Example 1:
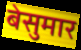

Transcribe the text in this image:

बेसुमार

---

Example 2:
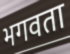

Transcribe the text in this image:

भगवता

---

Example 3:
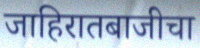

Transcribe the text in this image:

जाहिरातबाजीचा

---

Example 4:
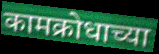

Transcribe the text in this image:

कामक्रोधाच्या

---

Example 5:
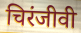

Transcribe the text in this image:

चिरंजीवी